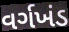
વર્ગખંડ